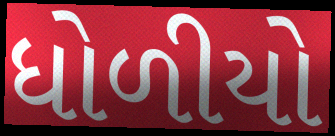
ધોળીયો